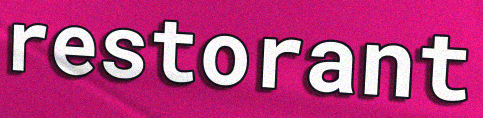
restorant